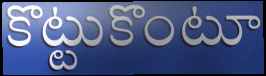
కొట్టుకొంటూ